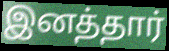
இனத்தார்